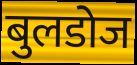
बुलडोज